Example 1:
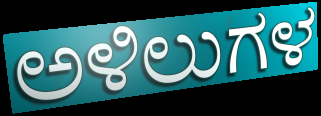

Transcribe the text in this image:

ಅಳಿಲುಗಳ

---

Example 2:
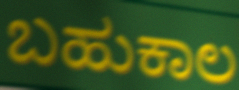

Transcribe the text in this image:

ಬಹುಕಾಲ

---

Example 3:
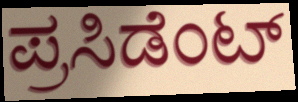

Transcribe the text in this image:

ಪ್ರಸಿಡೆಂಟ್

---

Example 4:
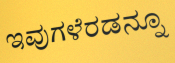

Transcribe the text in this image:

ಇವುಗಳೆರಡನ್ನೂ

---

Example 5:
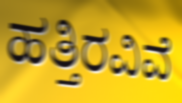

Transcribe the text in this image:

ಹತ್ತಿರವಿವೆ